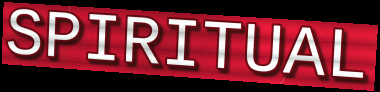
SPIRITUAL